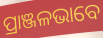
ପ୍ରାଞ୍ଜଳଭାବେ